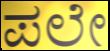
ಪಲೇ